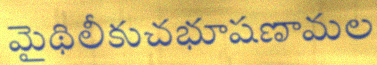
మైథిలీకుచభూషణామల